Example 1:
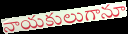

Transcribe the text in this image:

నాయకులుగానూ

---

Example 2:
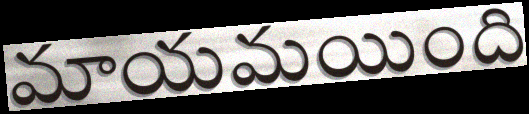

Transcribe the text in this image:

మాయమయింది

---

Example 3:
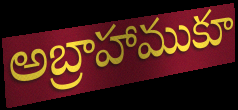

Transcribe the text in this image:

అబ్రాహాముకూ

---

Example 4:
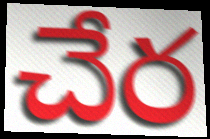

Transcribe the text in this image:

చేర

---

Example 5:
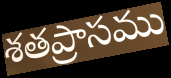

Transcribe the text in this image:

శతప్రాసము